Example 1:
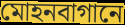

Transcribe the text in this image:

মোহনবাগানে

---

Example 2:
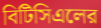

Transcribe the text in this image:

বিটিসিএলের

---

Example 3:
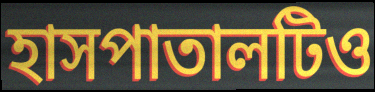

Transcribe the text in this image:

হাসপাতালটিও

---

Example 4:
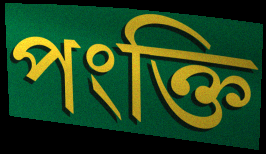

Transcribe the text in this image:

পংক্তি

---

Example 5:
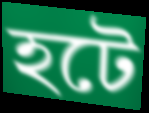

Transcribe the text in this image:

হটে